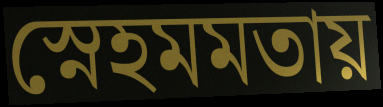
স্নেহমমতায়